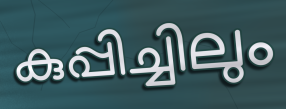
കുപ്പിച്ചിലും